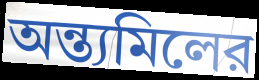
অন্ত্যমিলের